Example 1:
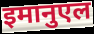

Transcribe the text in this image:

इमानुएल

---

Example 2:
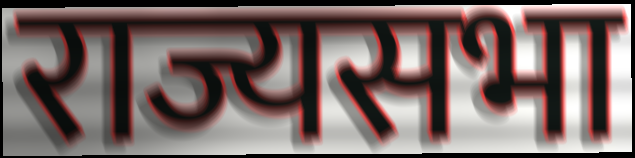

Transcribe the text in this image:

राज्यसभा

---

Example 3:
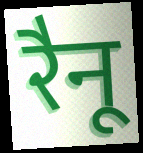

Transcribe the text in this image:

रैनू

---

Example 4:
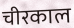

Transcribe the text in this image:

चीरकाल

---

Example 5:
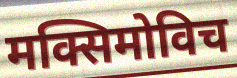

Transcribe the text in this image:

मक्सिमोविच